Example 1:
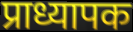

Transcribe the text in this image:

प्राध्यापक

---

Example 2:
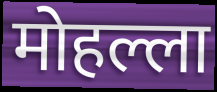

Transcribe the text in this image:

मोहल्‍ला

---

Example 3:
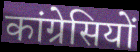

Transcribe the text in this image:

कांग्रेसियों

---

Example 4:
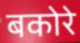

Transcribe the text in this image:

बकोरे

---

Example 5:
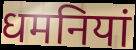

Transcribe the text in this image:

धमनियां